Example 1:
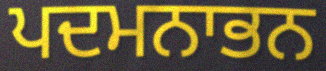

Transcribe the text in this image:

ਪਦਮਨਾਭਨ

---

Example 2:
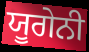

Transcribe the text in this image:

ਯੂਗੇਨੀ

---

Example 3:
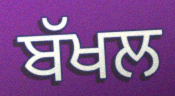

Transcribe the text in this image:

ਬੱਖਲ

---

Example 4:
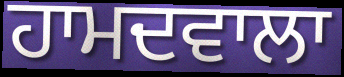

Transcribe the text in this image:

ਹਾਮਦਵਾਲਾ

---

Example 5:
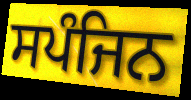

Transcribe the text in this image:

ਸਪੰਜਿਨ